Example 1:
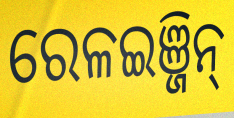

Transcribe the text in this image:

ରେଳଇଞ୍ଜିନ୍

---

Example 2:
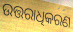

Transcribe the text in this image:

ଉତ୍ତରାଧିକରଣ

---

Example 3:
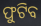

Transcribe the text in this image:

ଫୁଟିବ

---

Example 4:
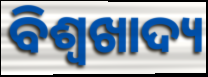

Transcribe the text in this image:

ବିଶ୍ୱଖାଦ୍ୟ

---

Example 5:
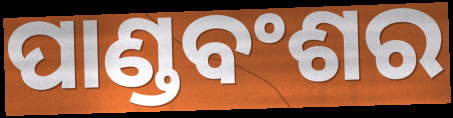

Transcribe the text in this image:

ପାଣ୍ଡବଂଶର